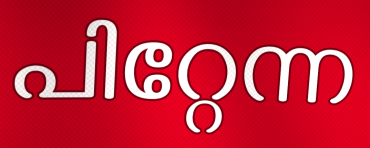
പിറ്റേന്ന